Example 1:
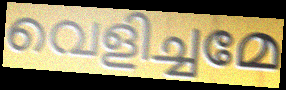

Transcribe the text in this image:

വെളിച്ചമേ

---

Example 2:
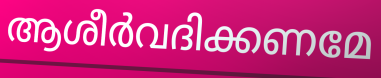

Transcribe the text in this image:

ആശീർവദിക്കണമേ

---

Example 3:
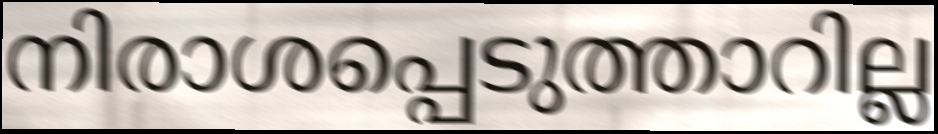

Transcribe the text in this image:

നിരാശപ്പെടുത്താറില്ല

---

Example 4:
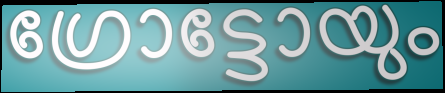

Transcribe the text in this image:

ഗ്രോട്ടോയും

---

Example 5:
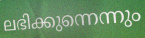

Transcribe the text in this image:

ലഭിക്കുന്നെന്നും